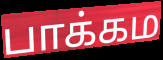
பாக்கம